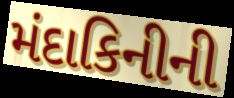
મંદાકિનીની